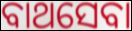
ବାଥସେବା